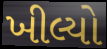
ખીલ્યો